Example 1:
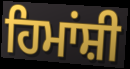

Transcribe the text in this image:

ਹਿਮਾਂਸ਼ੀ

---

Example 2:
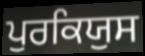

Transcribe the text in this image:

ਪੁਰਕਿਯੁਸ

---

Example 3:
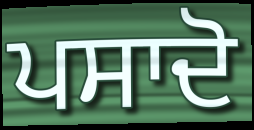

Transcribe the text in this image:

ਪਸਾਦੋ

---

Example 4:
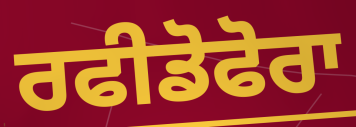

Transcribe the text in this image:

ਰਫੀਡੋਫੋਰਾ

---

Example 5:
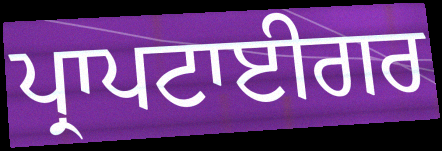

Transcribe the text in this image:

ਪ੍ਰਾਪਟਾਈਗਰ